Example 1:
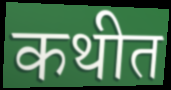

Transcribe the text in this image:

कथीत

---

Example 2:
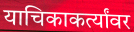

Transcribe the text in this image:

याचिकाकर्त्यांवर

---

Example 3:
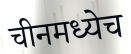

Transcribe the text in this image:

चीनमध्येच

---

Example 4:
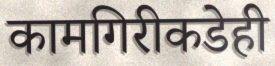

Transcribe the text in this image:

कामगिरीकडेही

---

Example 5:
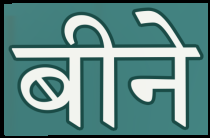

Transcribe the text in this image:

बीने